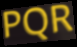
PQR